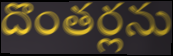
దొంతర్లను